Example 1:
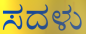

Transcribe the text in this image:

ಸದಳು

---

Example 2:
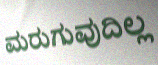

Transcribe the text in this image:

ಮರುಗುವುದಿಲ್ಲ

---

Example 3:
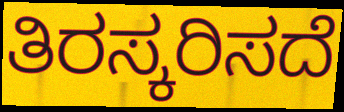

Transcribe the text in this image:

ತಿರಸ್ಕರಿಸದೆ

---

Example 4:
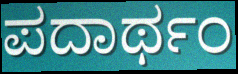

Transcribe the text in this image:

ಪದಾರ್ಥಂ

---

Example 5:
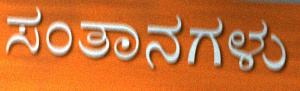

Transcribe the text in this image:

ಸಂತಾನಗಳು